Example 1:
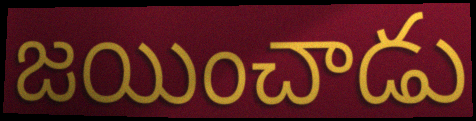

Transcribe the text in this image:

జయించాడు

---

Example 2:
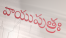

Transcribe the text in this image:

వాయుపుత్రః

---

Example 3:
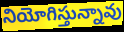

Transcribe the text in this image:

నియోగిస్తున్నావు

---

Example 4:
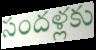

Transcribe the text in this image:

సందళ్లకు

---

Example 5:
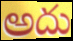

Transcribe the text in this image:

అదు